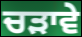
ਚੜਾਵੇ